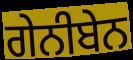
ਗੇਨੀਬੇਨ